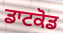
ਡਾਟਕੋਡ